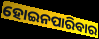
ହୋଇନପାରିବାର